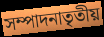
সম্পাদনাতৃতীয়